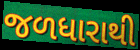
જળધારાથી